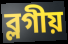
ব্লগীয়